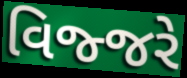
વિજ્જરે